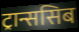
ट्रान्ससिब